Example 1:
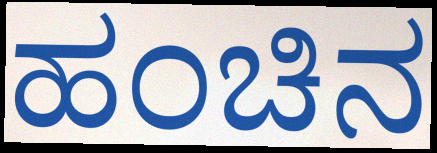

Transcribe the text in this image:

ಹಂಚಿನ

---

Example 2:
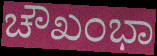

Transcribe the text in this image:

ಚೌಖಂಭಾ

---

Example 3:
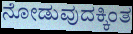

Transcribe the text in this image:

ನೋಡುವುದಕ್ಕಿಂತ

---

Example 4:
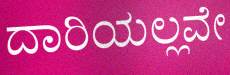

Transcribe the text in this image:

ದಾರಿಯಲ್ಲವೇ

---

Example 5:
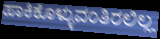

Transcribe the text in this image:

ಹಾಕಿಕೊಳ್ಳುವಂತಿರಲಿಲ್ಲ